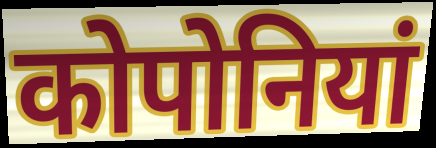
कोपोनियां